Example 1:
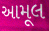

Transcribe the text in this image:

આમૂલ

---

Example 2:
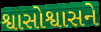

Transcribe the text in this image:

શ્વાસોશ્વાસને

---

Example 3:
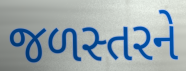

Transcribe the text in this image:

જળસ્તરને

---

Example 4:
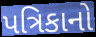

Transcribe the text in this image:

પત્રિકાનો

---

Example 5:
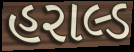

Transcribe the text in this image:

હરાલ્ડ